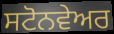
ਸਟੋਨਵੇਅਰ